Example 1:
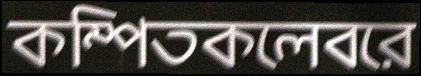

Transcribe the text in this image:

কম্পিতকলেবরে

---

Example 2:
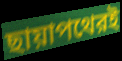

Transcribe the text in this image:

ছায়াপথেরই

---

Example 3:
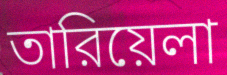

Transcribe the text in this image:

তারিয়েলা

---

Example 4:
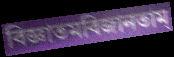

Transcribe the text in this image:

বিজ্ঞাতমবিজানতাম্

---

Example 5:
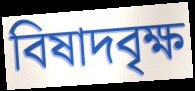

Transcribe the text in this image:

বিষাদবৃক্ষ